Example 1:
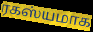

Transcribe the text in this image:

ரகஸ்யமாக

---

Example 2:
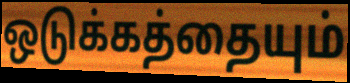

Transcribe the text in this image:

ஒடுக்கத்தையும்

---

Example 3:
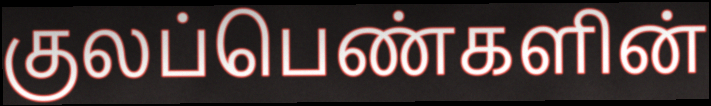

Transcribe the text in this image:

குலப்பெண்களின்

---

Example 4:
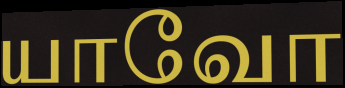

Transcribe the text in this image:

யாவோ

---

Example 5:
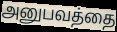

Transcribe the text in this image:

அனுபவத்தை